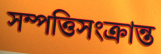
সম্পত্তিসংক্রান্ত